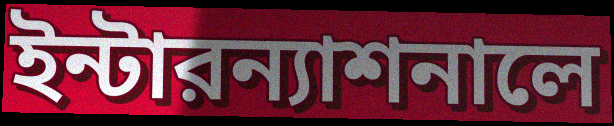
ইন্টারন্যাশনালে